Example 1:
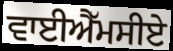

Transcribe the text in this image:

ਵਾਈਐੱਮਸੀਏ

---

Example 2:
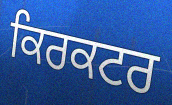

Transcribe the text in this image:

ਕਿਰਕਟਰ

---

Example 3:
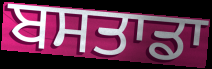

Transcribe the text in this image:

ਬਸਤਾਡਾ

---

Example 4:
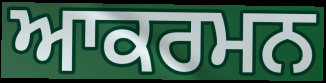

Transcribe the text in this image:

ਆਕਰਮਨ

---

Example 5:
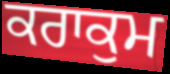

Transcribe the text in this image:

ਕਰਾਕੁਮ